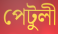
পেটুলী